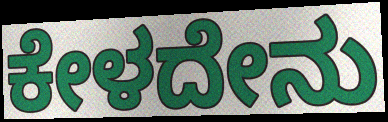
ಕೇಳದೇನು